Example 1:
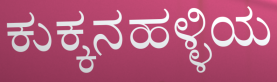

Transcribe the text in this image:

ಕುಕ್ಕನಹಳ್ಳಿಯ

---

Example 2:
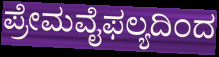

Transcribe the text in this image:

ಪ್ರೇಮವೈಫಲ್ಯದಿಂದ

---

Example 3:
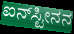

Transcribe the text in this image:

ಐನ್‌ಸ್ಟೀನನ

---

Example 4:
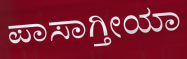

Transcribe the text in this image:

ಪಾಸಾಗ್ತೀಯಾ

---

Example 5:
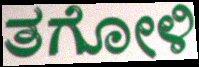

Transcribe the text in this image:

ತಗೋಳಿ